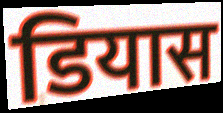
डियास